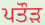
ਪਤੌੜ